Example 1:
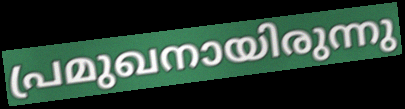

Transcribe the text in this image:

പ്രമുഖനായിരുന്നു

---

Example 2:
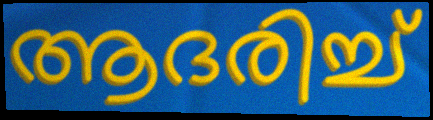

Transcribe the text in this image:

ആദരിച്ച്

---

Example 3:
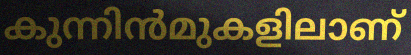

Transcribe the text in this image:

കുന്നിൻമുകളിലാണ്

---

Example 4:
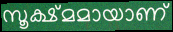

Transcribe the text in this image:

സൂക്ഷ്മമായാണ്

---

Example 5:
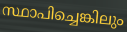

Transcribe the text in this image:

സ്ഥാപിച്ചെങ്കിലും